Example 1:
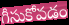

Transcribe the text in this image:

గీసుకోవడం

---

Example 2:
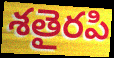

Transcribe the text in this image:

శతైరపి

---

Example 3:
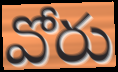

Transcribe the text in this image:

వోరు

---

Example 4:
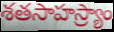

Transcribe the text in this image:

శతసాహస్ర్యాం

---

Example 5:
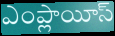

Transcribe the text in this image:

ఎంప్లాయీస్